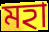
মহা